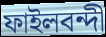
ফাইলবন্দী